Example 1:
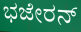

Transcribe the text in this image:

ಭಜೇರನ್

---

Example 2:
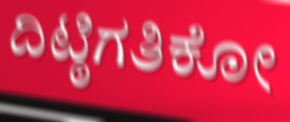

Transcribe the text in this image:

ದಿಟ್ಠಿಗತಿಕೋ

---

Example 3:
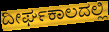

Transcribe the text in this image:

ದೀರ್ಘಕಾಲದಲ್ಲಿ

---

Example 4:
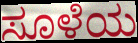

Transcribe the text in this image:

ಸೂಳೆಯ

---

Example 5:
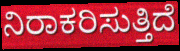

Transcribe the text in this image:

ನಿರಾಕರಿಸುತ್ತಿದೆ